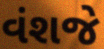
વંશજે